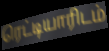
ரெட்டியாரிடம்